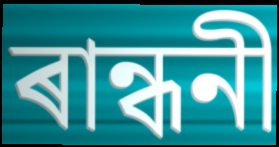
ৰান্ধনী